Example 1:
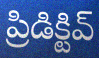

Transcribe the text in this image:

ప్రిడిక్టివ్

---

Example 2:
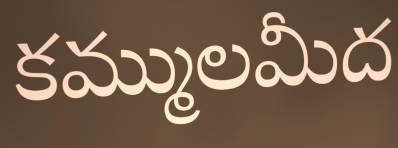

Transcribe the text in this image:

కమ్ములమీద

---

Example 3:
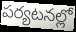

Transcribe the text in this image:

పర్యటనల్లో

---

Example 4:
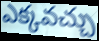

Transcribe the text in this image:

ఎక్కవచ్చు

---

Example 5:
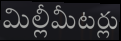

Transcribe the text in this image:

మిల్లీమీటర్లు